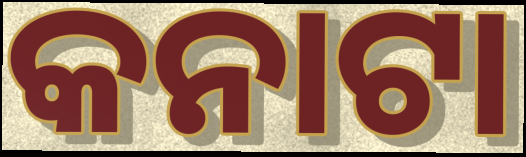
କନାଟା